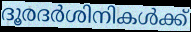
ദൂരദർശിനികൾക്ക്